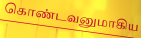
கொண்டவனுமாகிய